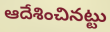
ఆదేశించినట్టు